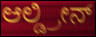
ಆಲ್ಡ್ರೀನ್